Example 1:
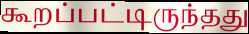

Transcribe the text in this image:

கூறப்பட்டிருந்தது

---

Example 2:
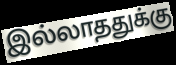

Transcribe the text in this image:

இல்லாததுக்கு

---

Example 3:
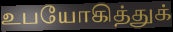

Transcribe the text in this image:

உபயோகித்துக்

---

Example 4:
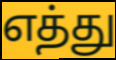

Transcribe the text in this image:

எத்து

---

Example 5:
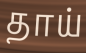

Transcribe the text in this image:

தாய்